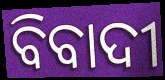
ବିବାଦୀ